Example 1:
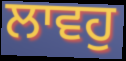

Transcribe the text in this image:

ਲਾਵਹੁ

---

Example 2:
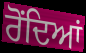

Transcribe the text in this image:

ਰੋਂਦਿਆਂ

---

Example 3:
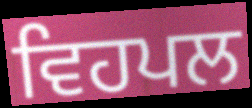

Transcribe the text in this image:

ਵਿਹਪਲ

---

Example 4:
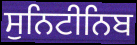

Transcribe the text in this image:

ਸੁਨਿਟੀਨਿਬ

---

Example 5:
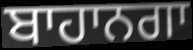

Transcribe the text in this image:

ਬਾਹਾਨਗਾ